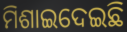
ମିଶାଇଦେଇଛି